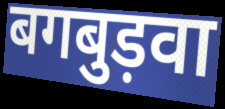
बगबुड़वा